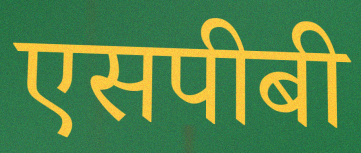
एसपीबी